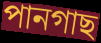
পানগাছ